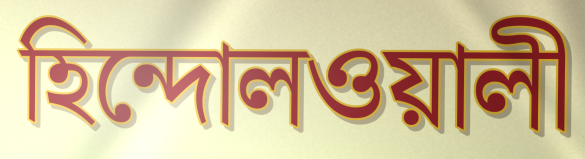
হিন্দোলওয়ালী